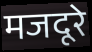
मजदूरे